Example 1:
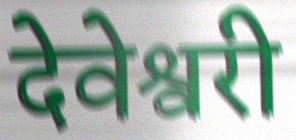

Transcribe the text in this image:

देवेश्वरी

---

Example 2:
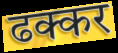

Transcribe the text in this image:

ढक्कर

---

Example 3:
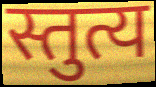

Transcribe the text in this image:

स्तुत्य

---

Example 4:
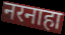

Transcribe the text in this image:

नरनाहा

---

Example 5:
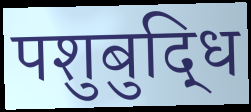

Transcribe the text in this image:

पशुबुद्धि